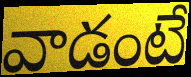
వాడంటే